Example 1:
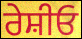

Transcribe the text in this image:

ਰੇਸ਼ੀਓ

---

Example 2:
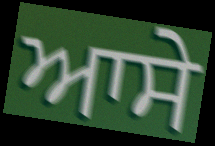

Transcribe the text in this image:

ਆਸੇ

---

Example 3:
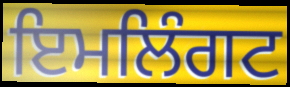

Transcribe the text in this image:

ਇਮਲਿੰਗਟ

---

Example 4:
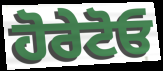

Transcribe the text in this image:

ਹੋਰੇਟੋਓ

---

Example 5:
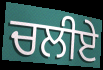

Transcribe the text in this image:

ਚਲੀਏ